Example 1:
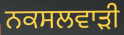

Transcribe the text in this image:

ਨਕਸਲਵਾੜੀ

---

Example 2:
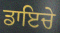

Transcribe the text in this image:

ਡਾਇਚੇ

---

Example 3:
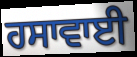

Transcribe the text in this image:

ਹਸਾਵਾਈ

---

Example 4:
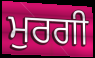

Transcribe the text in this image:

ਮੁਰਗੀ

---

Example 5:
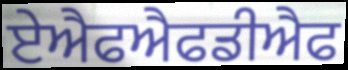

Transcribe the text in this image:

ਏਐਫਐਫਡੀਐਫ